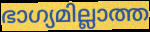
ഭാഗ്യമില്ലാത്ത